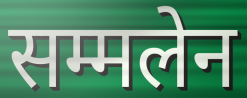
सम्मलेन